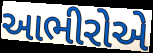
આભીરોએ